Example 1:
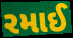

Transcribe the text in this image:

રમાઈ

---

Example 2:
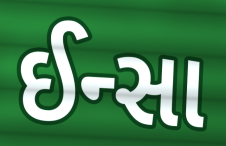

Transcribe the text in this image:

ઈન્સા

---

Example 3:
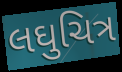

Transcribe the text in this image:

લઘુચિત્ર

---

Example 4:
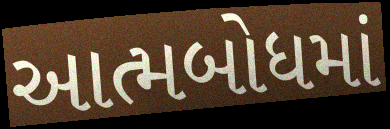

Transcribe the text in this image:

આત્મબોધમાં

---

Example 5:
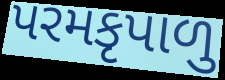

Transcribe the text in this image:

પરમકૃપાળુ